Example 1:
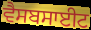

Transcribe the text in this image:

ਵੈਸਬਸਾਈਟ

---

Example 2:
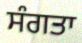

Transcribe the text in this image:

ਸੰਗਤਾ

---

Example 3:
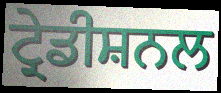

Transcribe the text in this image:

ਟ੍ਰੇਡੀਸ਼ਨਲ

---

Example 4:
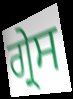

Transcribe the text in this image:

ਗ੍ਰੇਸ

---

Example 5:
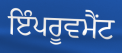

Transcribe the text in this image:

ਇੰਪਰੂਵਮੈਂਟ